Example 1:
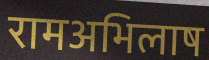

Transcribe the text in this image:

रामअभिलाष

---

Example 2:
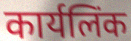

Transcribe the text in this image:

कार्यलिंक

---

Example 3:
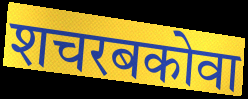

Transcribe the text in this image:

शचरबकोवा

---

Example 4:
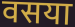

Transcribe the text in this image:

वसया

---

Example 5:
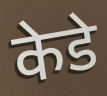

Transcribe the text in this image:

केडे